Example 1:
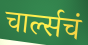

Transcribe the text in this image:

चार्ल्सचं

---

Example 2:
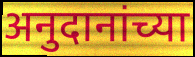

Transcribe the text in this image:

अनुदानांच्या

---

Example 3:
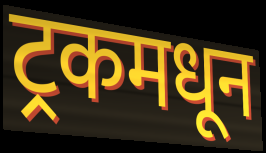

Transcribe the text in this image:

ट्रकमधून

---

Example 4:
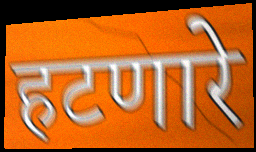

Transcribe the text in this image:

हटणारे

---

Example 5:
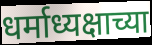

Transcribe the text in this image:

धर्माध्यक्षाच्या